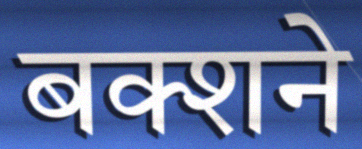
बक्शने